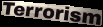
Terrorism